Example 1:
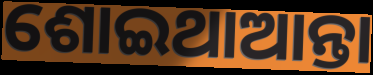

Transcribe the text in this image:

ଶୋଇଥାଆନ୍ତା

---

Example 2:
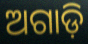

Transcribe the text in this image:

ଅଗାଡ଼ି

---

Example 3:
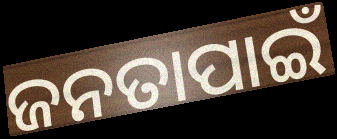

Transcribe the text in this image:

ଜନତାପାଇଁ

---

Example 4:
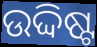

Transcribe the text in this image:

ଉଦ୍ଦିଷ୍ଟ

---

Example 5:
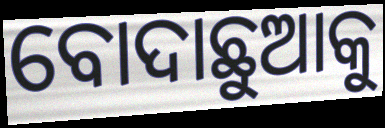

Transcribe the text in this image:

ବୋଦାଛୁଆକୁ